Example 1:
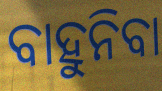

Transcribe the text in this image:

ବାହୁନିବା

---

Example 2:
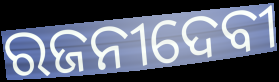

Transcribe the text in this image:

ରଜନୀଦେବୀ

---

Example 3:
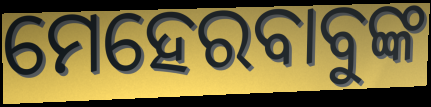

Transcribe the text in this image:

ମେହେରବାବୁଙ୍କ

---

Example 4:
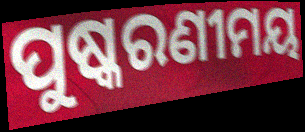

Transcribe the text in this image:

ପୁଷ୍କରଣୀମୟ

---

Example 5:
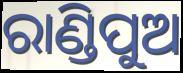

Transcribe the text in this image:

ରାଣ୍ଡିପୁଅ